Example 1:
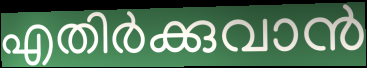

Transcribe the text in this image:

എതിർക്കുവാൻ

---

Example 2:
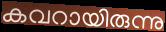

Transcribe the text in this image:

കവറായിരുന്നു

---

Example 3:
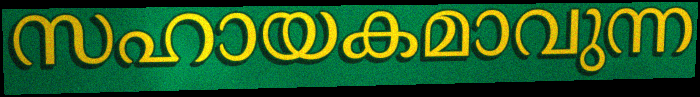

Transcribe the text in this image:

സഹായകമാവുന്ന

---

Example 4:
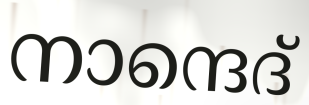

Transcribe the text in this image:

നാന്ദെദ്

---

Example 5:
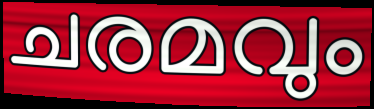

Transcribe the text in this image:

ചരമവും